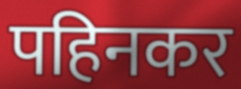
पहिनकर